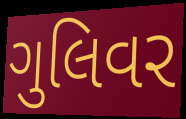
ગુલિવર